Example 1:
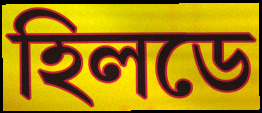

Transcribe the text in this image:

হিলডে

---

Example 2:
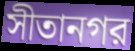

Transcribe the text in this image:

সীতানগর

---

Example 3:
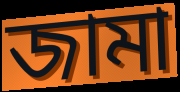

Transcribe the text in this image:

জামা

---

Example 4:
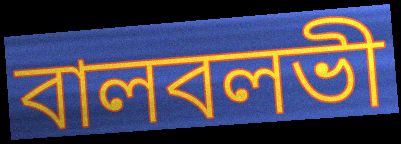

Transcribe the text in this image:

বালবলভী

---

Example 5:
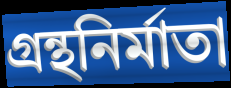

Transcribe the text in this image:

গ্রন্থনির্মাতা